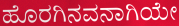
ಹೊರಗಿನವನಾಗಿಯೇ